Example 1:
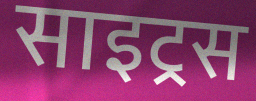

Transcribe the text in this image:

साइट्रस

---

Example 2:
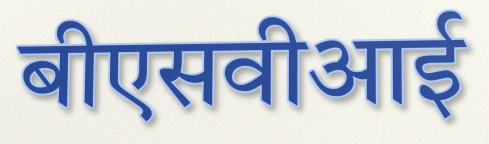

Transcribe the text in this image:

बीएसवीआई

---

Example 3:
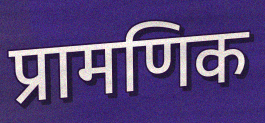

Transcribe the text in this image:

प्रामणिक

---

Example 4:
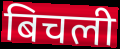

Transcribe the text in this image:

बिचली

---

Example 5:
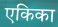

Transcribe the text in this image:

एकिका